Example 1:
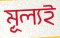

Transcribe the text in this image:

মূল্যই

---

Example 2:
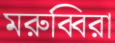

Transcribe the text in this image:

মরুব্বিরা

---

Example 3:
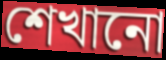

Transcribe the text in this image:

শেখানো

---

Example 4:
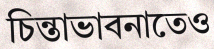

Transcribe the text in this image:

চিন্তাভাবনাতেও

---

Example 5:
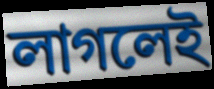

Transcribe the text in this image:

লাগলেই